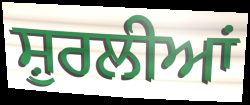
ਸ਼ੁਰਲੀਆਂ